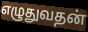
எழுதுவதன்